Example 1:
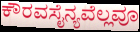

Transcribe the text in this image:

ಕೌರವಸೈನ್ಯವೆಲ್ಲವೂ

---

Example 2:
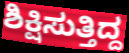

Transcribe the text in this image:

ಶಿಕ್ಷಿಸುತ್ತಿದ್ದ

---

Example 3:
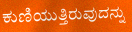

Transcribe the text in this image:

ಕುಣಿಯುತ್ತಿರುವುದನ್ನು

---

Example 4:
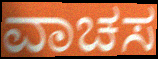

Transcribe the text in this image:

ವಾಚಸ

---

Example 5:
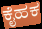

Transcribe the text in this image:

ಕೈಹಕ